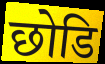
छोडि